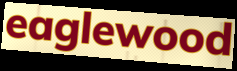
eaglewood